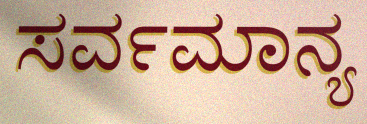
ಸರ್ವಮಾನ್ಯ